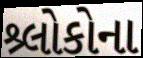
શ્ર્લોકોના